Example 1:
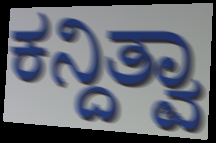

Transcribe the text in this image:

ಕನ್ದಿತ್ವಾ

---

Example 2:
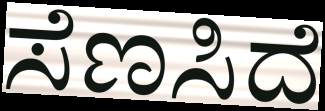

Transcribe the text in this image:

ಸೆಣಸಿದೆ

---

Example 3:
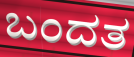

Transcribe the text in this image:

ಬಂದತ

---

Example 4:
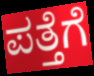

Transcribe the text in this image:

ಪತ್ತೆಗೆ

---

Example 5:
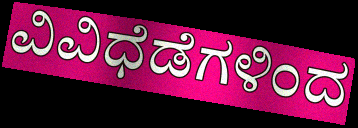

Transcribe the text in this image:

ವಿವಿಧೆಡೆಗಳಿಂದ